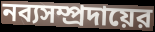
নব্যসম্প্রদায়ের